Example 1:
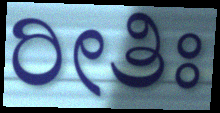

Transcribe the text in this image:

ರೀತಿಃ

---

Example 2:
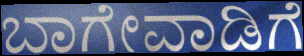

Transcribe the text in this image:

ಬಾಗೇವಾಡಿಗೆ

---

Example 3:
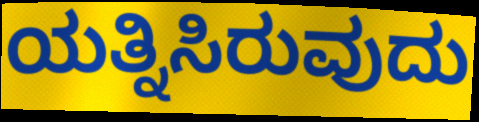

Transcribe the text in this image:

ಯತ್ನಿಸಿರುವುದು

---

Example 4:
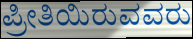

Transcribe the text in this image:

ಪ್ರೀತಿಯಿರುವವರು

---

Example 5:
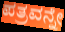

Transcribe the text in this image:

ಪತ್ರವನ್ನೇ